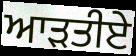
ਆੜਤੀਏ